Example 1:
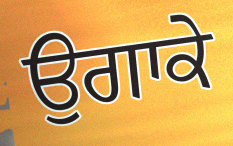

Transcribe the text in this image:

ਉਗਾਕੇ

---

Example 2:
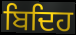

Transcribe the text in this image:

ਬਿਦਿਹ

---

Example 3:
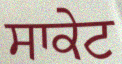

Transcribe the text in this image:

ਸਾਕੇਟ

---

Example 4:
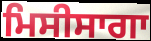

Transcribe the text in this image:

ਮਿਸੀਸਾਗਾ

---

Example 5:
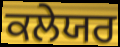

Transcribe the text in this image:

ਕਲੇਯਰ